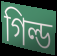
গিল্ড